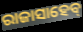
ରାଜାସାହେବ୍